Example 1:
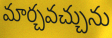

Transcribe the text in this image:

మార్చవచ్చును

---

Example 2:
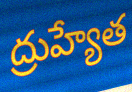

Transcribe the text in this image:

ద్రుహ్యేత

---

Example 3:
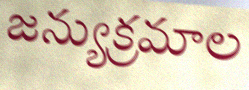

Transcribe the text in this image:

జన్యుక్రమాల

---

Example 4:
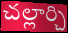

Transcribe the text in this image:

చల్లార్చి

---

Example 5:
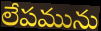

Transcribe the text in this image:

లేపమును